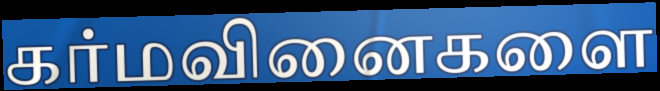
கர்மவினைகளை